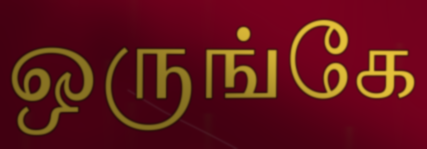
ஒருங்கே